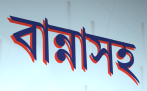
বান্নাসহ